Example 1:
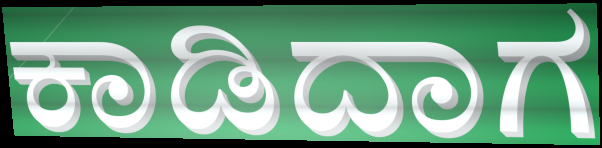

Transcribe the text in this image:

ಕಾಡಿದಾಗ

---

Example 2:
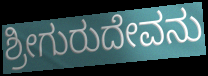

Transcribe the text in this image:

ಶ್ರೀಗುರುದೇವನು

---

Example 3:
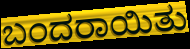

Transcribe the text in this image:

ಬಂದರಾಯಿತು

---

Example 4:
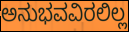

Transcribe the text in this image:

ಅನುಭವವಿರಲಿಲ್ಲ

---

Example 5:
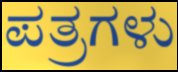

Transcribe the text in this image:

ಪತ್ರಗಳು